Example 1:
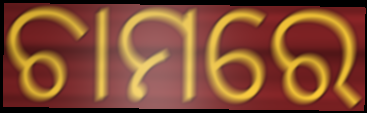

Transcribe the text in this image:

ଚାମରେ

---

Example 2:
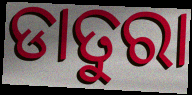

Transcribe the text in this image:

ଡାତୁରା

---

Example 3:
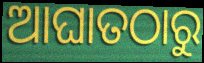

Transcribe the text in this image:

ଆଘାତଠାରୁ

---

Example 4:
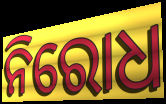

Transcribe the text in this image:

ନିରୋଧ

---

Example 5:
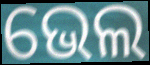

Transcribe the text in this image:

ଭେଲ